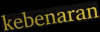
kebenaran